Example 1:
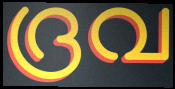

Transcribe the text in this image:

ദ്രവ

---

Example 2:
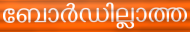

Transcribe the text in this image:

ബോർഡില്ലാത്ത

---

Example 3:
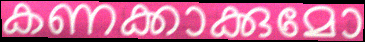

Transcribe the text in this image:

കണക്കാക്കുമോ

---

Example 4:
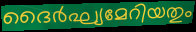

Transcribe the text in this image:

ദൈർഘ്യമേറിയതും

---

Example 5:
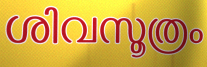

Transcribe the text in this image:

ശിവസൂത്രം